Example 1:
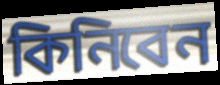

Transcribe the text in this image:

কিনিবেন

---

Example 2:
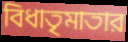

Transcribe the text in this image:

বিধাতৃমাতার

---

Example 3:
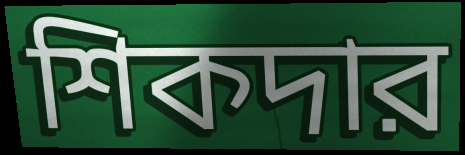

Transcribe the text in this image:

শিকদার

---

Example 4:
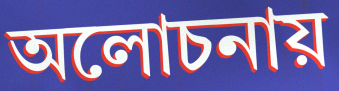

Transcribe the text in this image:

অলোচনায়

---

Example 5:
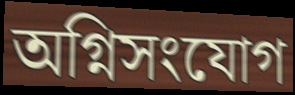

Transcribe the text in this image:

অগ্নিসংযোগ